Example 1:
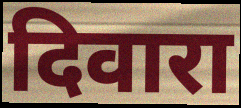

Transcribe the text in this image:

दिवारा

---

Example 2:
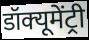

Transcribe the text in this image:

डॉक्‍यूमेंट्री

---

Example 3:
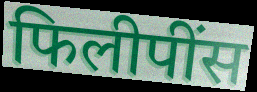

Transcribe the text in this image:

फिलीपींस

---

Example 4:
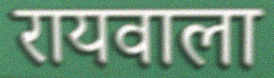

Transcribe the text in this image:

रायवाला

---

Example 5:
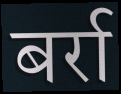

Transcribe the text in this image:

बर्रा